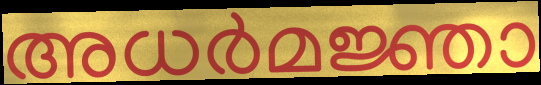
അധർമജ്ഞാ